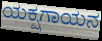
ಯಕ್ಷಗಾಯನ